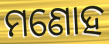
ମଣୋହ